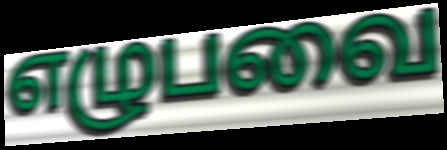
எழுபவை